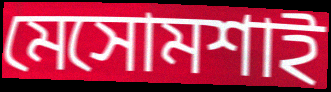
মেসোমশাই